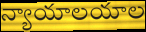
న్యాయాలయాల